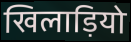
खिलाड़ियो